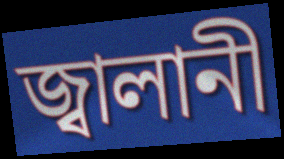
জ্বালানী